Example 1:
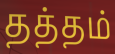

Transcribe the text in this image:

தத்தம்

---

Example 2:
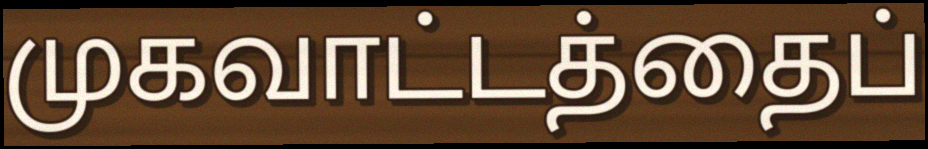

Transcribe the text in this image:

முகவாட்டத்தைப்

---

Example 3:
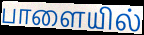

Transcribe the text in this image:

பாளையில்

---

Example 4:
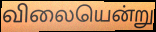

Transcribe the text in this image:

விலையென்று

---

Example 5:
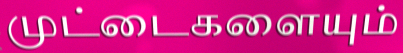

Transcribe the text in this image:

முட்டைகளையும்